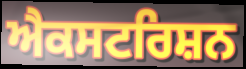
ਐਕਸਟਰਿਸ਼ਨ